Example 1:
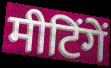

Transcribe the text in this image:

मीटिंगें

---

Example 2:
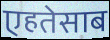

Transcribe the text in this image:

एहतेसाब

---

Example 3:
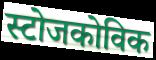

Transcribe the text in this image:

स्टोजकोविक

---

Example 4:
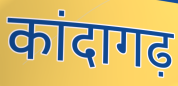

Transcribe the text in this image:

कांदागढ़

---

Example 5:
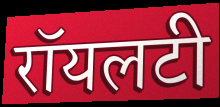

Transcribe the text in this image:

रॉयलटी